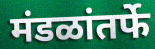
मंडळांतर्फे